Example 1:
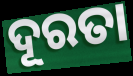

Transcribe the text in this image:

ଦୂରତା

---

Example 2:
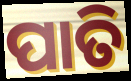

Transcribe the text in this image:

ପାତି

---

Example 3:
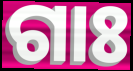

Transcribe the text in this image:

ଗାଃ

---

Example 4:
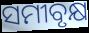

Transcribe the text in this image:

ସମୀବୃକ୍ଷ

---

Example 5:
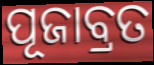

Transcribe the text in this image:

ପୂଜାବ୍ରତ